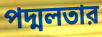
পদ্মলতার